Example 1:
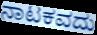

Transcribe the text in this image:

ನಾಟಕವದು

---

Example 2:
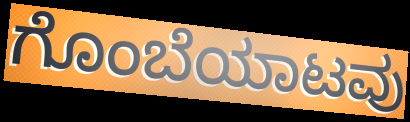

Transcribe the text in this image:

ಗೊಂಬೆಯಾಟವು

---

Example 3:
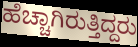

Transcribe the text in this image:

ಹೆಚ್ಚಾಗಿರುತ್ತಿದ್ದರು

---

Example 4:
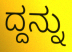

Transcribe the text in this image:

ದ್ದನ್ನು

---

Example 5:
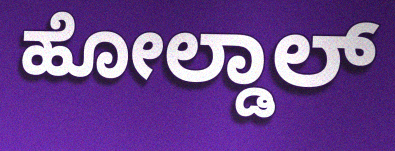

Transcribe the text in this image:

ಹೋಲ್ಡಾಲ್